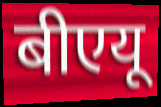
बीएयू